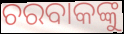
ଚରବାକଙ୍କୁ